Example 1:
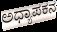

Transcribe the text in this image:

ಅಧ್ಯಾಪಕನ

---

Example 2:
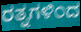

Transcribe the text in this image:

ರತ್ನಗಳಿಂದ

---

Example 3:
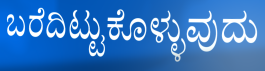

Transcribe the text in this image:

ಬರೆದಿಟ್ಟುಕೊಳ್ಳುವುದು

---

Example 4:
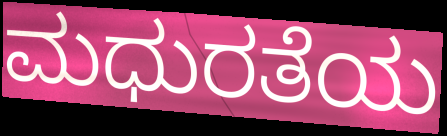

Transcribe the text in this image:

ಮಧುರತೆಯ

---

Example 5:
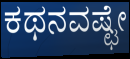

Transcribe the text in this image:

ಕಥನವಷ್ಟೇ